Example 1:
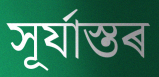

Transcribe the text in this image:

সূৰ্যাস্তৰ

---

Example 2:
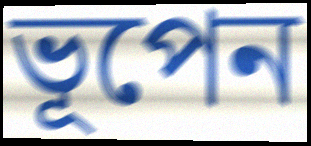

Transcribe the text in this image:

ভূপেন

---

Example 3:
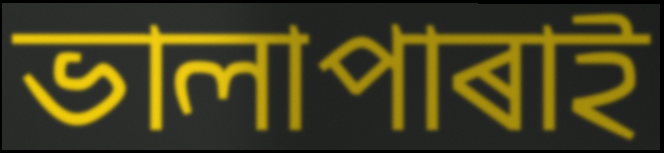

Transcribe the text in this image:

ভালাপাৰাই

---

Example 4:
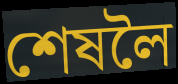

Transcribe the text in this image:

শেষলৈ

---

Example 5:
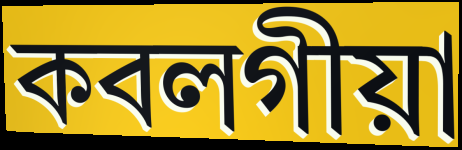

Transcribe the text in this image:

কবলগীয়া